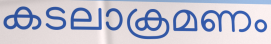
കടലാക്രമണം